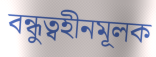
বন্ধুত্বহীনমূলক